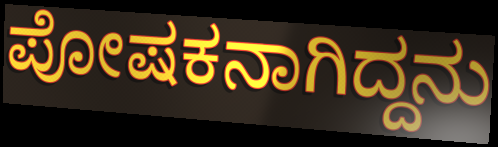
ಪೋಷಕನಾಗಿದ್ದನು